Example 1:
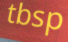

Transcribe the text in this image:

tbsp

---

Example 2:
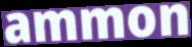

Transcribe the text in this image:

ammon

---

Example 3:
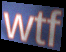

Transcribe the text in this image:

wtf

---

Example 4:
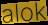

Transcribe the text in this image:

alok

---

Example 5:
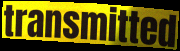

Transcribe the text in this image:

transmitted